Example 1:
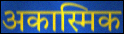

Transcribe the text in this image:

अकास्मिक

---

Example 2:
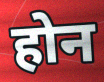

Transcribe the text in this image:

होन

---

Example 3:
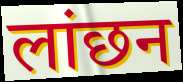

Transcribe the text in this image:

लांछन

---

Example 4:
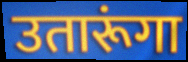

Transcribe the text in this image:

उतारूंगा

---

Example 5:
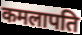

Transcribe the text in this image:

कमलापति